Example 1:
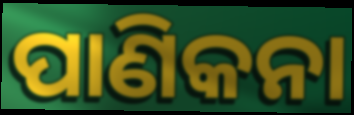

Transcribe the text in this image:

ପାଣିକନା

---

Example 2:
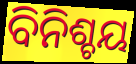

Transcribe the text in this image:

ବିନିଶ୍ଚୟ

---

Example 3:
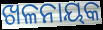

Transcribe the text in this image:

ଖଳନାୟକ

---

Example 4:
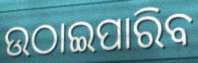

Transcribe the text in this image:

ଉଠାଇପାରିବ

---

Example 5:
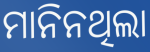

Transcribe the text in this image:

ମାନିନଥିଲା